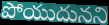
పోయుదునని